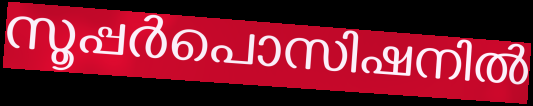
സൂപ്പർപൊസിഷനിൽ